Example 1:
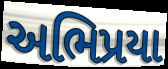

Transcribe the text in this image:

અભિપ્રયા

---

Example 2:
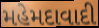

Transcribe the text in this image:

મહેમદાવાદી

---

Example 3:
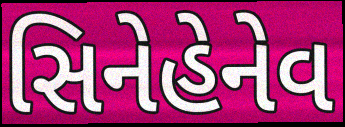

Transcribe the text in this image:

સિનેહેનેવ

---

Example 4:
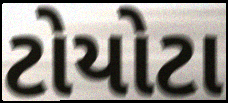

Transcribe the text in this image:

ટોયોટા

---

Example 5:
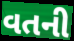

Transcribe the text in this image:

વતની